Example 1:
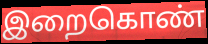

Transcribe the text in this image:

இறைகொண்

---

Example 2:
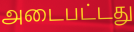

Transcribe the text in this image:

அடைபட்டது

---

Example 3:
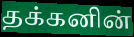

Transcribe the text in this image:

தக்கனின்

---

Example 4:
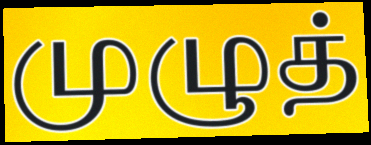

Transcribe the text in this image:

முழுத்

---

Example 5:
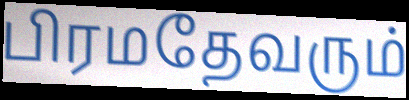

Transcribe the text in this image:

பிரமதேவரும்